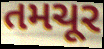
તમચૂર